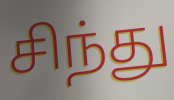
சிந்து